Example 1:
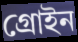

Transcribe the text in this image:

গ্রোইন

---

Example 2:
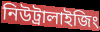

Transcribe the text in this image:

নিউট্রালাইজিং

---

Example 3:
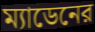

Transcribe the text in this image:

ম্যাডেনের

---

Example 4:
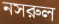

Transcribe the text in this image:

নসরুল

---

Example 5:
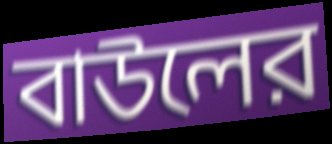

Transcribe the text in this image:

বাউলের